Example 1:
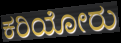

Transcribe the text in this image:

ಕರಿಯೋರು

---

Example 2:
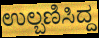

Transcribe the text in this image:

ಉಲ್ಬಣಿಸಿದ್ದ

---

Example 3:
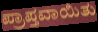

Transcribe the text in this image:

ಪ್ರಾಪ್ತವಾಯಿತು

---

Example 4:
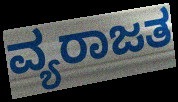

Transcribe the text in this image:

ವ್ಯರಾಜತ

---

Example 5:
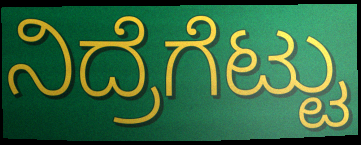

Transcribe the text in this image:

ನಿದ್ರೆಗೆಟ್ಟು